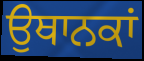
ਉਥਾਨਕਾਂ